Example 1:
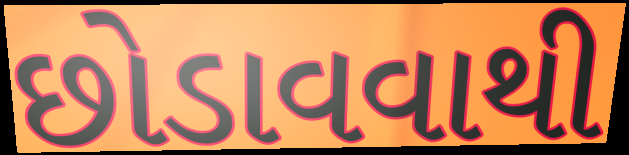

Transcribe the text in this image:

છોડાવવાથી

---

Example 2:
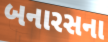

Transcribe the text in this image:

બનારસના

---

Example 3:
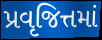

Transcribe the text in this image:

પ્રવૃજિત્તમાં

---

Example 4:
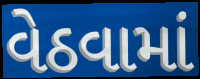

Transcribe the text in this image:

વેઠવામાં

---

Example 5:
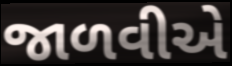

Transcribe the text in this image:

જાળવીએ